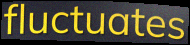
fluctuates